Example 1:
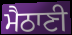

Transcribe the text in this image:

ਮੈਠਾਣੀ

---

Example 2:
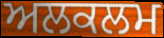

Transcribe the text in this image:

ਅਲਕਲਮ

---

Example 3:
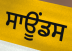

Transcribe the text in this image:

ਸਾਊਂਡਸ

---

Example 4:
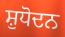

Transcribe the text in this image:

ਸ਼ੁਧੋਦਨ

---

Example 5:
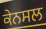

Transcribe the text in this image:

ਕੇਨਸਲ